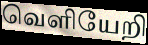
வெளியேறி